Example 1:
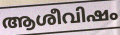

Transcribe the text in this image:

ആശീവിഷം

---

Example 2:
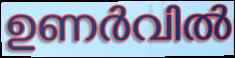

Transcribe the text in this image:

ഉണർവിൽ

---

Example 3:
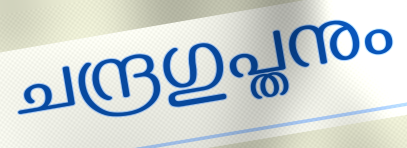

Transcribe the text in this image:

ചന്ദ്രഗുപ്തനും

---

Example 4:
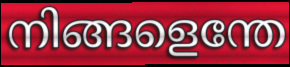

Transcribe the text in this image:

നിങ്ങളെന്തേ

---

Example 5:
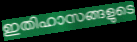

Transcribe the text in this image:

ഇതിഹാസങ്ങളുടെ